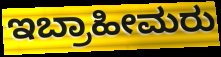
ಇಬ್ರಾಹೀಮರು